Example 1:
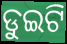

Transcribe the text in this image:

ଡୁଇଟି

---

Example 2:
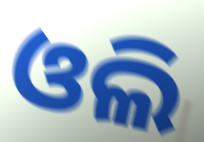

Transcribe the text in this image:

ଓଲି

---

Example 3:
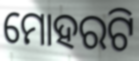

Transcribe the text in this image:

ମୋହରଟି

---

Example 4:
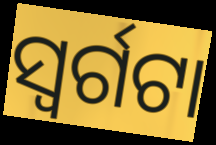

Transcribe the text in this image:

ସ୍ୱର୍ଗଟା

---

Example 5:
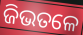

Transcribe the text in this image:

ଜିଭତଳେ